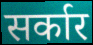
सर्कार